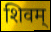
शिवम्